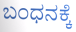
ಬಂಧನಕ್ಕೆ